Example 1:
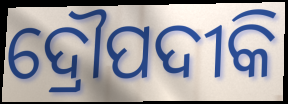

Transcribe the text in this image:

ଦ୍ରୌପଦୀକି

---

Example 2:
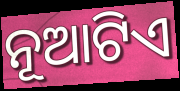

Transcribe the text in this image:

ନୂଆଟିଏ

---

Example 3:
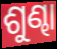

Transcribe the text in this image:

ଶୁଣ୍ଢା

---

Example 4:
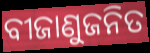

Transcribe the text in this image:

ବୀଜାଣୁଜନିତ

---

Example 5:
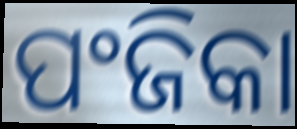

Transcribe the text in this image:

ପଂଜିକା